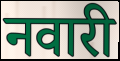
नवारी